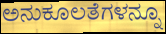
ಅನುಕೂಲತೆಗಳನ್ನೂ